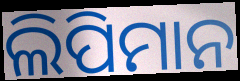
ଲିପିମାନ